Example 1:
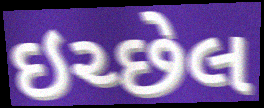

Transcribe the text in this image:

ઇચ્છેલ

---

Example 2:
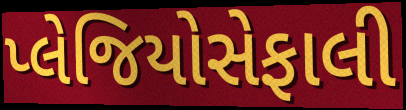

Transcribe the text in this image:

પ્લેજિયોસેફાલી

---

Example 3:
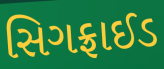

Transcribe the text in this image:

સિગફ્રાઈડ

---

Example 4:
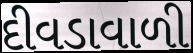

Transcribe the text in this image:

દીવડાવાળી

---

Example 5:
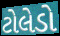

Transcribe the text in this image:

ટોલેડો